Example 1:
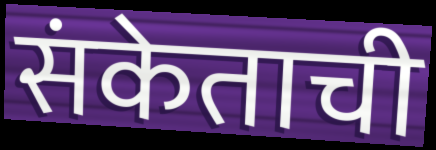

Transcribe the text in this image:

संकेताची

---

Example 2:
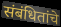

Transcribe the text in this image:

संबंधितांचे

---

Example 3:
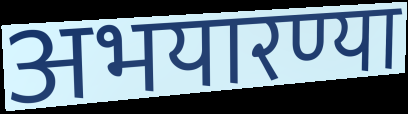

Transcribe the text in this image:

अभयारण्या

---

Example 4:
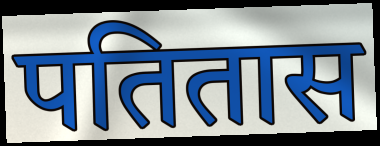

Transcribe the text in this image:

पतितास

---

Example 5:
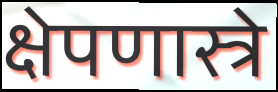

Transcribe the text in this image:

क्षेपणास्त्रे